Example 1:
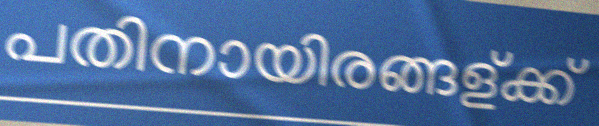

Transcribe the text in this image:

പതിനായിരങ്ങള്ക്ക്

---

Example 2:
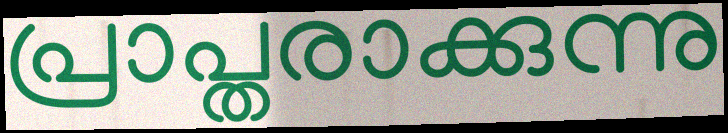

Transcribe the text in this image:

പ്രാപ്തരാക്കുന്നു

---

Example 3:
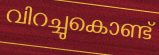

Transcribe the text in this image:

വിറച്ചുകൊണ്ട്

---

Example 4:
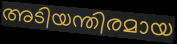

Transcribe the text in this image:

അടിയന്തിരമായ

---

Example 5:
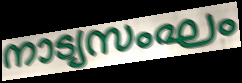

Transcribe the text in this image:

നാട്യസംഘം